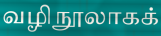
வழிநூலாகக்